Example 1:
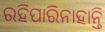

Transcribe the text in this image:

ରହିପାରିନାହାନ୍ତି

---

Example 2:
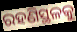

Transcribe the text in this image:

ରହଣିସ୍ଥଳକୁ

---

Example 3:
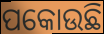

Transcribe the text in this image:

ପକୋଉଛି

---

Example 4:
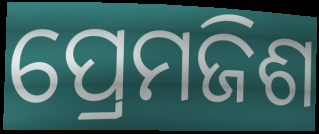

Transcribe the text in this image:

ପ୍ରେମଜିଶ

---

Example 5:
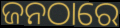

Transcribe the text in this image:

ଜନଠାରେ